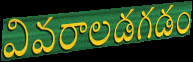
వివరాలడగడం